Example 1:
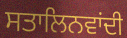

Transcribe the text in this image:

ਸਤਾਲਿਨਵਾਂਦੀ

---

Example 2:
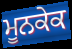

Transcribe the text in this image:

ਮੂਨਕੇਕ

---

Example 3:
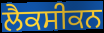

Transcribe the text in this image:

ਲੈਕਸੀਕਨ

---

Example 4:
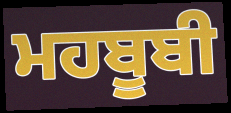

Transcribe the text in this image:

ਮਹਬੂਬੀ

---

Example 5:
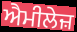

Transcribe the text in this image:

ਐਮੀਲੇਜ਼